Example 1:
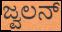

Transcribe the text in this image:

ಜ್ವಲನ್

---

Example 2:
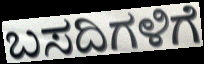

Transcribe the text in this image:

ಬಸದಿಗಳಿಗೆ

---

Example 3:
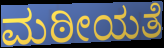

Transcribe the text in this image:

ಮಠೀಯತೆ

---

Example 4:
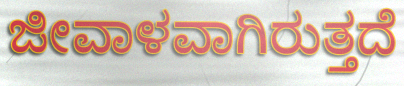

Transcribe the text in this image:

ಜೀವಾಳವಾಗಿರುತ್ತದೆ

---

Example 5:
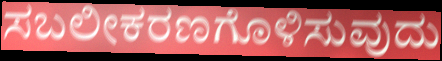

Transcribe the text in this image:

ಸಬಲೀಕರಣಗೊಳಿಸುವುದು